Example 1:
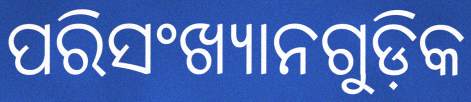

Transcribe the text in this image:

ପରିସଂଖ୍ୟାନଗୁଡ଼ିକ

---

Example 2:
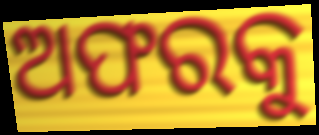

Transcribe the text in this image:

ଅଫରକୁ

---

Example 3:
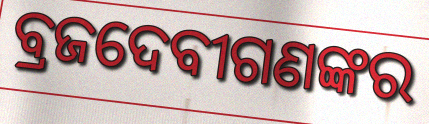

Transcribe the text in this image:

ବ୍ରଜଦେବୀଗଣଙ୍କର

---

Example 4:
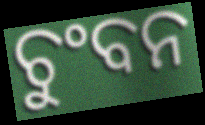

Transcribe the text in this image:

ଚୁଂବନ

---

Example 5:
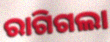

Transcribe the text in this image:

ରାଗିଗଲା